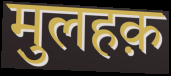
मुलहक़